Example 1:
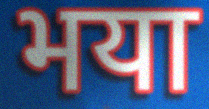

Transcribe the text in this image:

भया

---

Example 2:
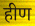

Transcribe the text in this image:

हीण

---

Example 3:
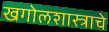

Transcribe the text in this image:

खगोलशास्त्राचे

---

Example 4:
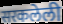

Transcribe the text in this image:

सरकलेली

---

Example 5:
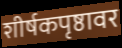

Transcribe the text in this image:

शीर्षकपृष्ठावर